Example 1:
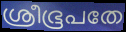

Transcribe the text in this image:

ശ്രീഭൂപതേ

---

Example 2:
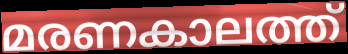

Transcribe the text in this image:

മരണകാലത്ത്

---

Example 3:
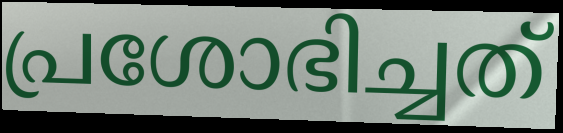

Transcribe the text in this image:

പ്രശോഭിച്ചത്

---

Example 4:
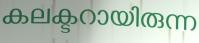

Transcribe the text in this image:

കലക്ടറായിരുന്ന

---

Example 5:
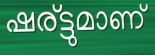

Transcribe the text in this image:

ഷര്ട്ടുമാണ്